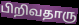
பிறிவதாரு